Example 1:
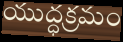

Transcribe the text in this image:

యుద్ధక్రమం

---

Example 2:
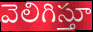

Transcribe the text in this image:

వెలిగిస్తూ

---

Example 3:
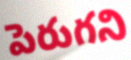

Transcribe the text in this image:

పెరుగని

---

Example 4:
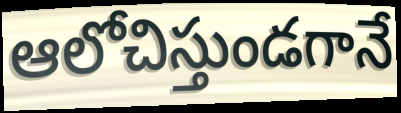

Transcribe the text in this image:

ఆలోచిస్తుండగానే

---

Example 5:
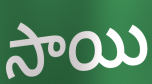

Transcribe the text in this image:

సాయి